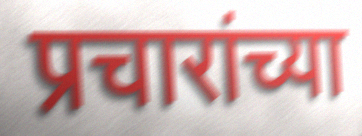
प्रचारांच्या